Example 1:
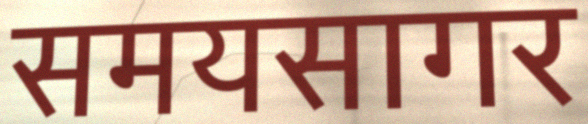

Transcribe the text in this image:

समयसागर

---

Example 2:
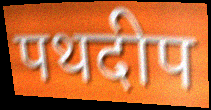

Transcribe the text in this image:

पथदीप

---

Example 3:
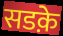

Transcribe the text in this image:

सडक़े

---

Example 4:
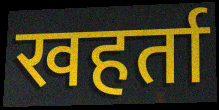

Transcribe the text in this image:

खहर्ता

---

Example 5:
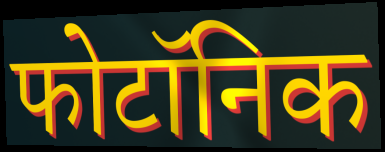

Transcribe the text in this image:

फोटॉनिक